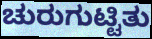
ಚುರುಗುಟ್ಟಿತು